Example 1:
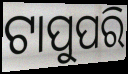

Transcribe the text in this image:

ଟାପୁପରି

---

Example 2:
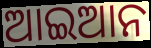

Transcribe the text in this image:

ଆଇଆନ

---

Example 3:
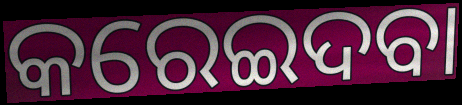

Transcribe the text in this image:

କରେଇଦବା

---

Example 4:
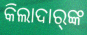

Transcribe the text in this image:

କିଲାଦାର୍‍ଙ୍କ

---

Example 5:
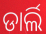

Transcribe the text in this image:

ଡାର୍ଲି